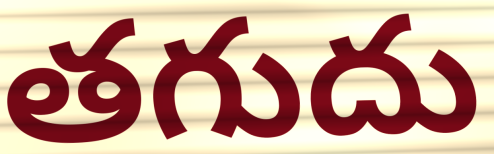
తగుదు